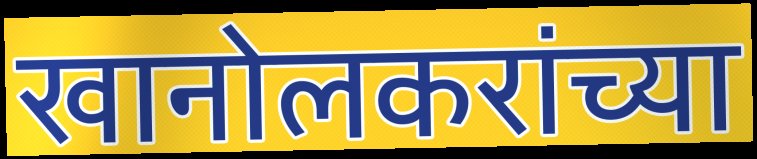
खानोलकरांच्या